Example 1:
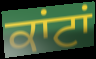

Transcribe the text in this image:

ਕਾਂਟਾਂ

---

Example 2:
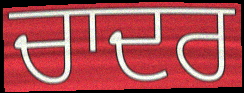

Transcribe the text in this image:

ਚਾਦਰ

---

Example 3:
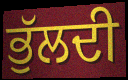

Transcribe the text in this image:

ਭੁੱਲਦੀ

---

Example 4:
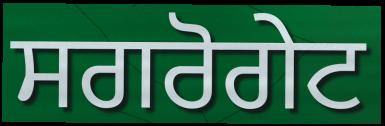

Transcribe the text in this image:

ਸਗਰੋਗੇਟ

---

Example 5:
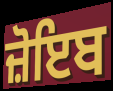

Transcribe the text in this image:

ਜ਼ੋਇਬ